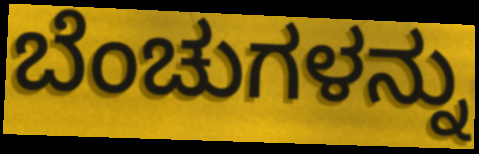
ಬೆಂಚುಗಳನ್ನು